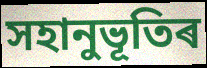
সহানুভূতিৰ